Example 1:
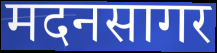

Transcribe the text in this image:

मदनसागर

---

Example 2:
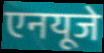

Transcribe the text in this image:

एनयूजे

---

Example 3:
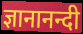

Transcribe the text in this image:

ज्ञानानन्दी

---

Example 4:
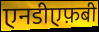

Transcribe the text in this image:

एनडीएफ़बी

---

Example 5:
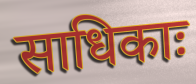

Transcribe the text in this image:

साधिकाः